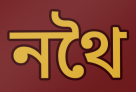
নথৈ